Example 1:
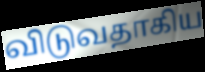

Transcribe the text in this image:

விடுவதாகிய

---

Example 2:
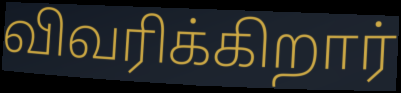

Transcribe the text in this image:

விவரிக்கிறார்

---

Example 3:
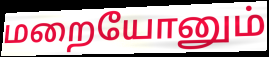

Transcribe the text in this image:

மறையோனும்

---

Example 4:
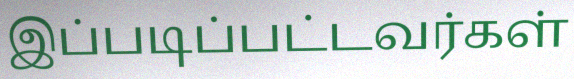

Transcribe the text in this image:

இப்படிப்பட்டவர்கள்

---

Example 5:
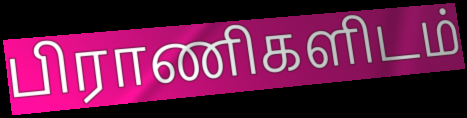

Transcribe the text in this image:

பிராணிகளிடம்